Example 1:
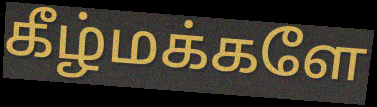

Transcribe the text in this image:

கீழ்மக்களே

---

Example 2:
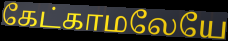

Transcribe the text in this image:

கேட்காமலேயே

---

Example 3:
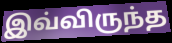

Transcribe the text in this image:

இவ்விருந்த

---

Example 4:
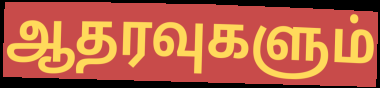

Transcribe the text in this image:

ஆதரவுகளும்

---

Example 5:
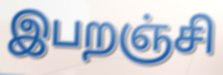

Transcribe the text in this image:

இபறஞ்சி